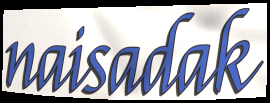
naisadak